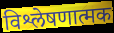
विश्लेषणात्मक